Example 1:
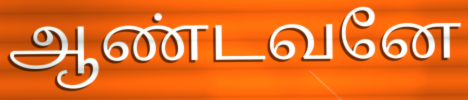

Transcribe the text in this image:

ஆண்டவனே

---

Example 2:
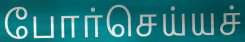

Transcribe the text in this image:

போர்செய்யச்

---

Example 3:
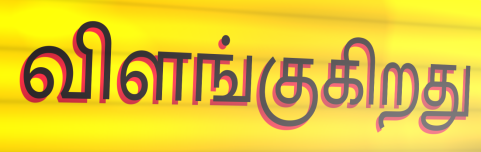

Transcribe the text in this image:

விளங்குகிறது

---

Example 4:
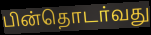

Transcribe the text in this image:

பின்தொடர்வது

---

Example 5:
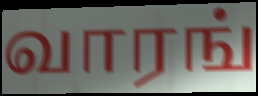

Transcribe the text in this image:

வாரங்